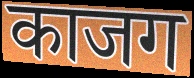
काजग